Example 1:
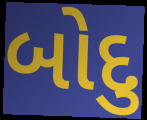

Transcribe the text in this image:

બોદુ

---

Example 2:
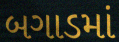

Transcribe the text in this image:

બગાડમાં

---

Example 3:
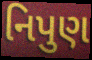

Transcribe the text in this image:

નિપુણ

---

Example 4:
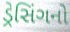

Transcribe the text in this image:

ડ્રેસિંગનો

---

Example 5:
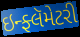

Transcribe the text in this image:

ઇન્ફ્લૅમેટરી